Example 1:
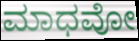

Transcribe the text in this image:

ಮಾಧವೋ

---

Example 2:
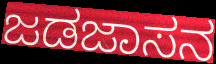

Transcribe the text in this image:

ಜಡಜಾಸನ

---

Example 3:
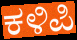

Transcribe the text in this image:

ಕಳಿಪಿ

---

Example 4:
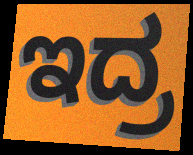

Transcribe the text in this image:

ಇದ್ರ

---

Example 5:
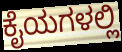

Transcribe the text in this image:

ಕೈಯಗಳಲ್ಲಿ